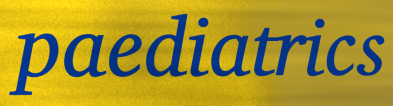
paediatrics